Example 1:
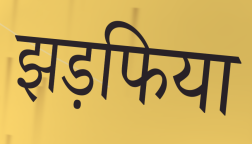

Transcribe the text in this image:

झड़फिया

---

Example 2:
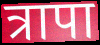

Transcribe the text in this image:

त्रापा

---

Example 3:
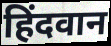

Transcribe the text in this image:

हिंदवान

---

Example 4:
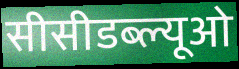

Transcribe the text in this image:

सीसीडब्ल्यूओ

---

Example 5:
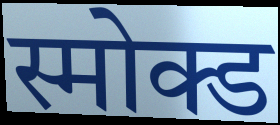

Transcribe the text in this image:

स्मोक्ड